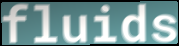
fluids